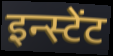
इन्स्टेंट